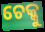
ଚେକ୍କୁ